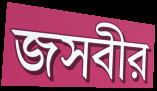
জসবীর